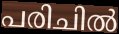
പരിചിൽ